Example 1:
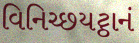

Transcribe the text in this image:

વિનિચ્છયટ્ઠાનં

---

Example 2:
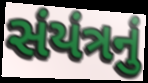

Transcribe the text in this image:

સંયંત્રનું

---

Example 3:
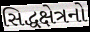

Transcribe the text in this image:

સિદ્ધક્ષેત્રનો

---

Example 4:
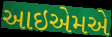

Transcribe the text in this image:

આઇએમએ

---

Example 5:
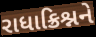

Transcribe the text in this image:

રાધાક્રિશ્નને